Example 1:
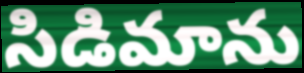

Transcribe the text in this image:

సిడిమాను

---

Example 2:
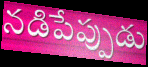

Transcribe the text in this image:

నడిపేప్పుడు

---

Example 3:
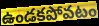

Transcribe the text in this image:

ఉండకపోవటం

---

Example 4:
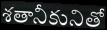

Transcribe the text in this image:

శతానీకునితో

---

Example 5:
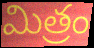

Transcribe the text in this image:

మిత్రం